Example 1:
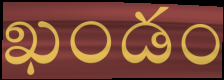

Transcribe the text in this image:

ఖండం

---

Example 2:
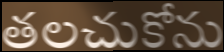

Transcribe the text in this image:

తలచుకోను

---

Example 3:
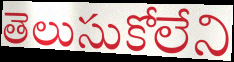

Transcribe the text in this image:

తెలుసుకోలేని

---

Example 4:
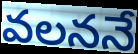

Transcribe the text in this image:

వలననే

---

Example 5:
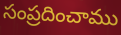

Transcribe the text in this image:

సంప్రదించాము